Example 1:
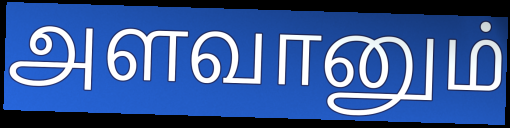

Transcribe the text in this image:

அளவானும்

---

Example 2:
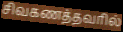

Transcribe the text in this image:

சிவகணத்தவரில்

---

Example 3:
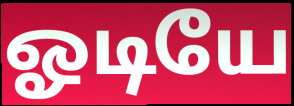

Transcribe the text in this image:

ஓடியே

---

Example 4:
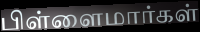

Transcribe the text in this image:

பிள்ளைமார்கள்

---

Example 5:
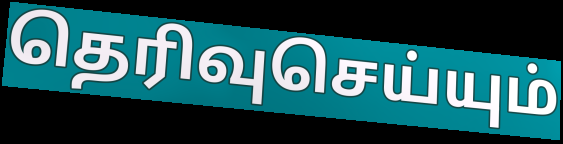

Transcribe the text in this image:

தெரிவுசெய்யும்